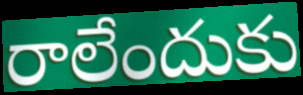
రాలేందుకు